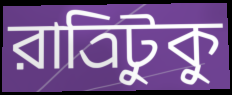
রাত্রিটুকু